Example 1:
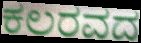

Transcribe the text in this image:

ಕಲರವದ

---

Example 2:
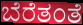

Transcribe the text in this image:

ಬೆರೆತಂತೆ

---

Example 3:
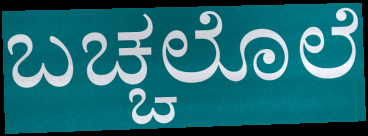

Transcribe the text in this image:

ಬಚ್ಚಲೊಲೆ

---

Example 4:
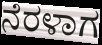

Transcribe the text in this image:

ನೆರಳಾಗ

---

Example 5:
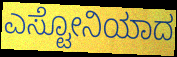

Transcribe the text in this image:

ಎಸ್ಟೋನಿಯಾದ